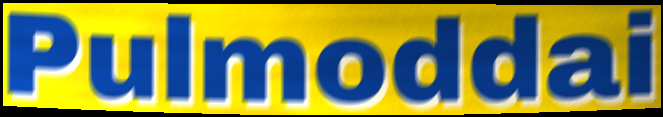
Pulmoddai